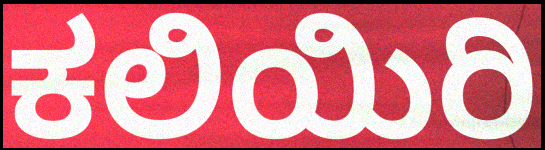
ಕಲಿಯಿರಿ